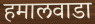
हमालवाडा